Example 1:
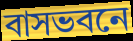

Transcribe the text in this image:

বাসভবনে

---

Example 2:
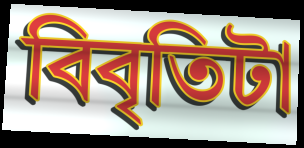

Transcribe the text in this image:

বিবৃতিটা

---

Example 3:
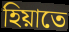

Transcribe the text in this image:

হিয়াতে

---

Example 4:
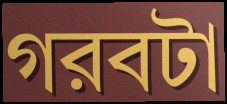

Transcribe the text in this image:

গরবটা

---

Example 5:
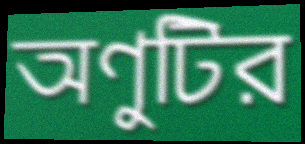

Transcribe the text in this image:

অণুটির